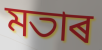
মতাৰ